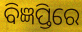
ବିଜ୍ଞପ୍ତିରେ